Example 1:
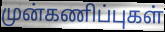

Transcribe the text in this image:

முன்கணிப்புகள்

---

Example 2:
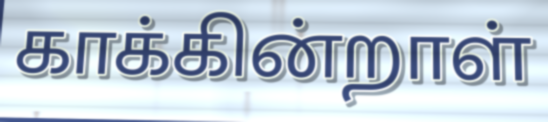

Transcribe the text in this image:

காக்கின்றாள்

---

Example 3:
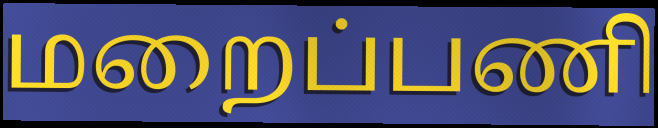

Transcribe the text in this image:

மறைப்பணி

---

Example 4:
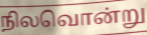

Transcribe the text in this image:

நிலவொன்று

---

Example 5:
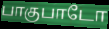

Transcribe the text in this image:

பாகுபாடோ